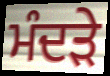
ਮੰਦੜੇ